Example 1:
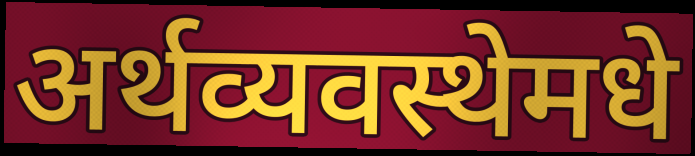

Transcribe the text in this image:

अर्थव्यवस्थेमधे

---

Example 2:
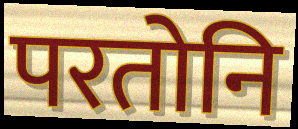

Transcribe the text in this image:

परतोनि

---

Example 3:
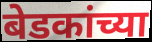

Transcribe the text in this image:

बेडकांच्या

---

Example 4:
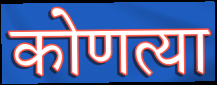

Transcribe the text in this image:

कोणत्या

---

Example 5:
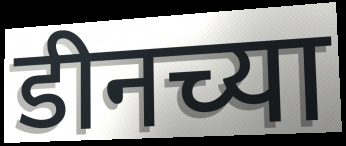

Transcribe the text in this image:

डीनच्या